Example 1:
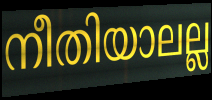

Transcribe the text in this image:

നീതിയാലല്ല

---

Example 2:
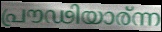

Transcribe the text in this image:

പ്രൗഢിയാര്ന്ന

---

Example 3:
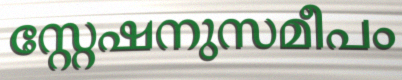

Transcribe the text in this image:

സ്റ്റേഷനുസമീപം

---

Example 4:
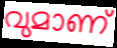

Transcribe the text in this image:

വുമാണ്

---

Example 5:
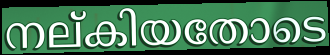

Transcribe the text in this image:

നല്കിയതോടെ